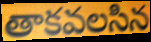
తాకవలసిన